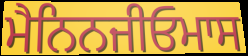
ਮੈਨਿਨਜੀਓਮਾਸ